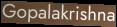
Gopalakrishna